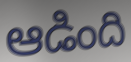
ఆడింది